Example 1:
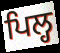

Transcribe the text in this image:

ਪਿਲ੍ਹ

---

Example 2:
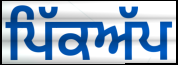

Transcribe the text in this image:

ਪਿੱਕਅੱਪ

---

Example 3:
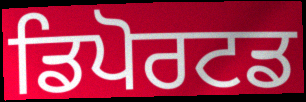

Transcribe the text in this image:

ਡਿਪੋਰਟਡ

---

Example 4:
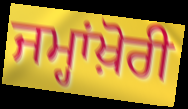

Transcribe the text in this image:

ਜਮ੍ਹਾਂਖ਼ੋਰੀ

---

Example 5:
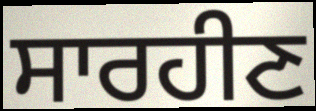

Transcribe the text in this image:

ਸਾਰਹੀਣ